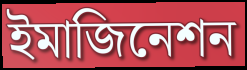
ইমাজিনেশন